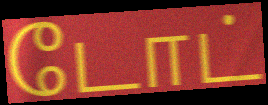
டோட்